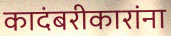
कादंबरीकारांना